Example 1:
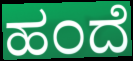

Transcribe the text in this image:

ಹಂದೆ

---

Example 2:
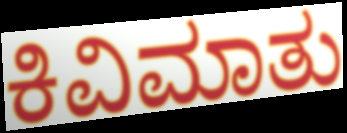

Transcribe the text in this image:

ಕಿವಿಮಾತು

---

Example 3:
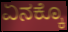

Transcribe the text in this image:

ಏನಕ್ಕೊ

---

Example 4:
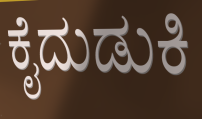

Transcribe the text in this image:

ಕೈದುಡುಕಿ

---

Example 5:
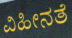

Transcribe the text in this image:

ವಿಹೀನತೆ